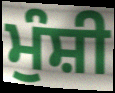
ਮੁੰਸ਼ੀ